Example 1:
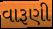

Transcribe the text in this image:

વારૂણી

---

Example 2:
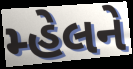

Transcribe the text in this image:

મ્હેલને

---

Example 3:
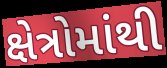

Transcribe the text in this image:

ક્ષેત્રોમાંથી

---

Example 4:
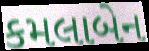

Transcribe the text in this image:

કમલાબેન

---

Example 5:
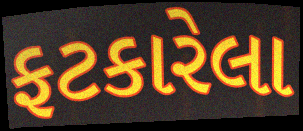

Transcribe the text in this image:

ફટકારેલા